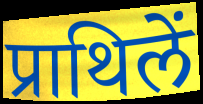
प्राथिलें